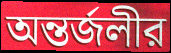
অন্তর্জলীর